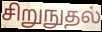
சிறுநுதல்